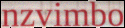
nzvimbo